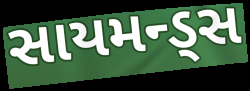
સાયમન્ડ્સ